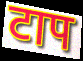
टाप